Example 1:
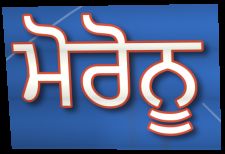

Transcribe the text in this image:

ਮੋਰੋਨੂ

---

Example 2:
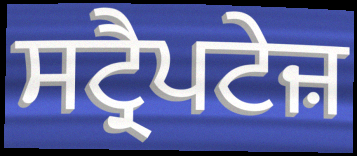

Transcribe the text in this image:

ਸਟ੍ਰੈਪਟੇਜ਼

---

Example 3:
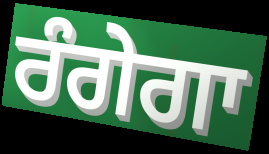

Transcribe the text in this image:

ਰੰਗੇਗਾ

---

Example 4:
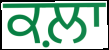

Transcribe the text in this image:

ਕਲ਼ਾ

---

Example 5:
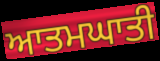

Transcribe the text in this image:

ਆਤਮਘਾਤੀ